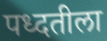
पध्दतीला